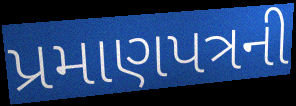
પ્રમાણપત્રની